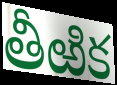
తీఱిక